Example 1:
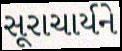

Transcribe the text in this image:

સૂરાચાર્યને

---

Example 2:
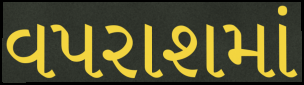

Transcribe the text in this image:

વપરાશમાં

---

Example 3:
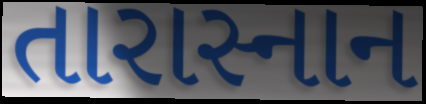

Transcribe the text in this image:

તારાસ્નાન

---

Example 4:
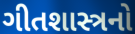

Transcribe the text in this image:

ગીતશાસ્ત્રનો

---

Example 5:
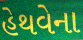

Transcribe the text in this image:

હેથવેના